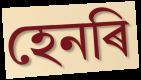
হেনৰি